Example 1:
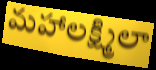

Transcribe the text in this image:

మహాలక్ష్మిలా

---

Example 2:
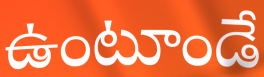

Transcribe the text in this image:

ఉంటూండే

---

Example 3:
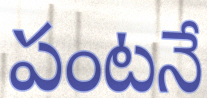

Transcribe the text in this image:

పంటనే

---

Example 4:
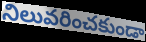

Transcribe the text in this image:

నిలువరించకుండా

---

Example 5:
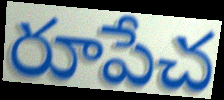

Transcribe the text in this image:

రూపేచ